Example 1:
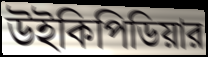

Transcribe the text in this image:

উইকিপিডিয়ার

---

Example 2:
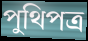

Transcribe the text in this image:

পুথিপত্র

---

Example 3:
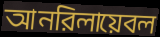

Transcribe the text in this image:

আনরিলায়েবল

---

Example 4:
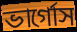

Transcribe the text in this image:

ভার্গোস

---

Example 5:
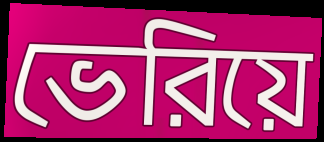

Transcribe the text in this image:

ভেরিয়ে